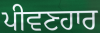
ਪੀਵਣਹਾਰ